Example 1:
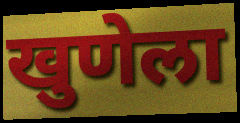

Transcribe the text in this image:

खुणेला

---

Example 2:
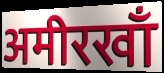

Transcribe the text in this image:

अमीरखाँ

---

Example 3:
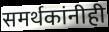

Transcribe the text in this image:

समर्थकांनीही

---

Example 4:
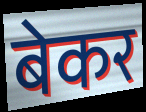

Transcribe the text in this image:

बेकर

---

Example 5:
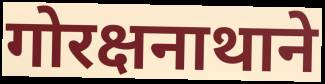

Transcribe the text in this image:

गोरक्षनाथाने